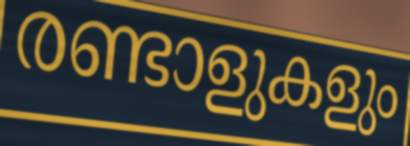
രണ്ടാളുകളും